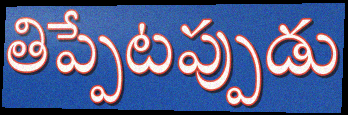
తిప్పేటప్పుడు